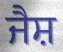
ਜੈਸ਼